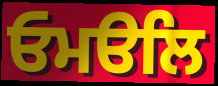
ਓਮੳਲਿ